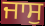
ਜਾਸੁ